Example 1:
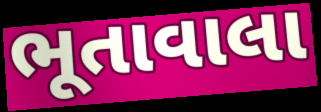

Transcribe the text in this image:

ભૂતાવાલા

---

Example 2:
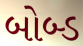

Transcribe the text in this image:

બોબ્ડ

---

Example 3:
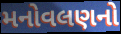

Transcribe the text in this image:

મનોવલણનો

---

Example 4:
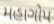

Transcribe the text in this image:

મહાગોપ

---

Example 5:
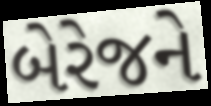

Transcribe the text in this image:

બેરેજને